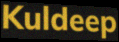
Kuldeep